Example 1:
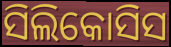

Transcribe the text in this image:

ସିଲିକୋସିସ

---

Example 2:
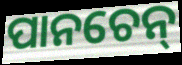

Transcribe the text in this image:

ପାନଚେନ୍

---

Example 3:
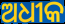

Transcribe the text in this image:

ଅଧୀକ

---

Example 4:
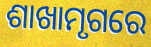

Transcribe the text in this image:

ଶାଖାମୃଗରେ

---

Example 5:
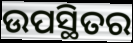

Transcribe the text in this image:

ଉପସ୍ଥିତର